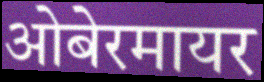
ओबेरमायर